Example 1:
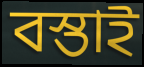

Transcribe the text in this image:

বস্তাই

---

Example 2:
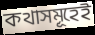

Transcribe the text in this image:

কথাসমূহেই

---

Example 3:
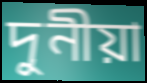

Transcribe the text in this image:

দুনীয়া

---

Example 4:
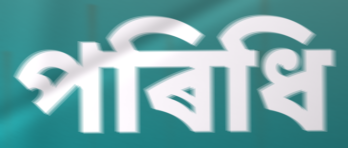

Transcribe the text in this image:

পৰিধি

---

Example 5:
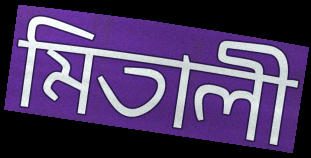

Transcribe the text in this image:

মিতালী